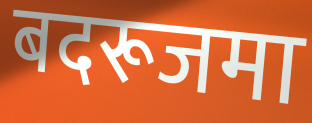
बदरूजमा